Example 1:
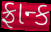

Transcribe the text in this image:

ફ્રાન્ક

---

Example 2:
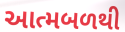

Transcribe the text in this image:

આત્મબળથી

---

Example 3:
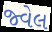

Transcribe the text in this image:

જ્વેલ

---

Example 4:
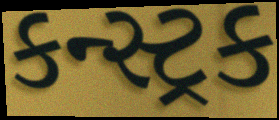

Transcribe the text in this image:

કન્સ્ટ્રક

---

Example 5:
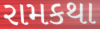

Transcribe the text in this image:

રામકથા